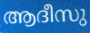
ആദീസു